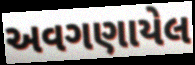
અવગણાયેલ